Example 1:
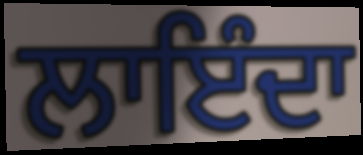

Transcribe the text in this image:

ਲਾਇੰਦਾ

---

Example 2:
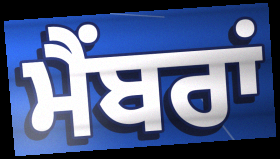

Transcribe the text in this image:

ਮੈਂਬਰਾਂ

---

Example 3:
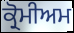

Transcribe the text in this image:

ਕ੍ਰੋਮੀਅਮ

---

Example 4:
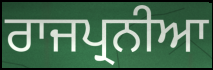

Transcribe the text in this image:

ਰਾਜਪ੍ਰਨੀਆ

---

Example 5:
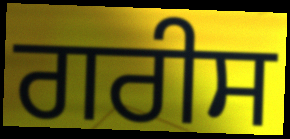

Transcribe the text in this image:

ਗਰੀਸ